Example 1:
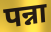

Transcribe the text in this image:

पन्ना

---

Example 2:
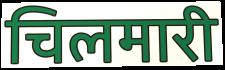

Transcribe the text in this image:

चिलमारी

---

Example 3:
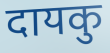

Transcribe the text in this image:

दायकु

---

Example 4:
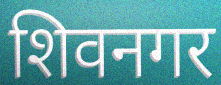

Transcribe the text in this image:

शिवनगर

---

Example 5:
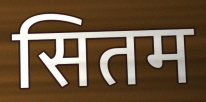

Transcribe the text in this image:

सितम